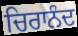
ਚਿਰਾਨੰਦ